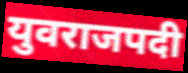
युवराजपदी